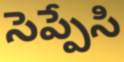
సెప్పేసి